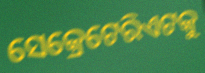
ସେକ୍ରେଟେରିଏଟକୁ